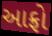
આફ્રો